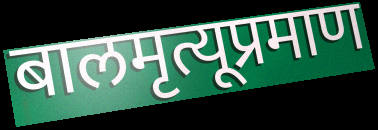
बालमृत्यूप्रमाण